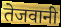
तेजवानी